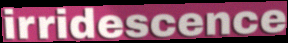
irridescence